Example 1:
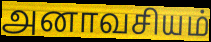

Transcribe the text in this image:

அனாவசியம்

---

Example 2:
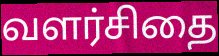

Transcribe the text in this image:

வளர்சிதை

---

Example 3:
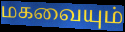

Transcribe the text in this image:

மகவையும்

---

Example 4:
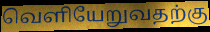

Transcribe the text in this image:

வெளியேறுவதற்கு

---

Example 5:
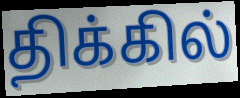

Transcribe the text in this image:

திக்கில்